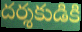
దర్శకుడికి